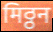
मिठ्ठन